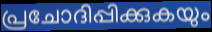
പ്രചോദിപ്പിക്കുകയും